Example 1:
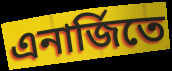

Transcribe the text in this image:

এনার্জিতে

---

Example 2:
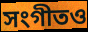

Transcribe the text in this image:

সংগীতও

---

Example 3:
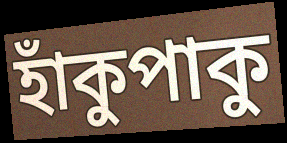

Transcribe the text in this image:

হাঁকুপাকু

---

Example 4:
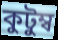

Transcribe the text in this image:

কুটুম্ব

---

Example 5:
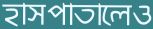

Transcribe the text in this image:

হাসপাতালেও